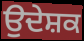
ਉਦੇਸ਼ਕ